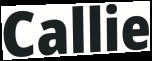
Callie